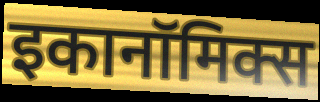
इकानॉमिक्स